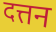
दत्तन